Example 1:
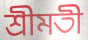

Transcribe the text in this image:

শ্রীমতী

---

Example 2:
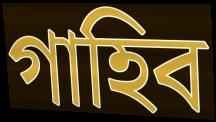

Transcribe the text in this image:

গাহিব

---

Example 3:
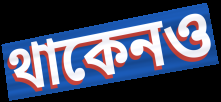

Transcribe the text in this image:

থাকেনও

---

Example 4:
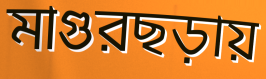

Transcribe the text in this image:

মাগুরছড়ায়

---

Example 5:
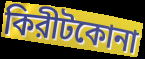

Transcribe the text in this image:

কিরীটকোনা